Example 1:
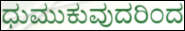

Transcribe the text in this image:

ಧುಮುಕುವುದರಿಂದ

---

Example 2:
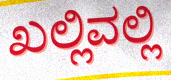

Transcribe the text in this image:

ಖಲ್ಲಿವಲ್ಲಿ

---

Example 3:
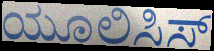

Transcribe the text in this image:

ಯೂಲಿಸಿಸ್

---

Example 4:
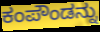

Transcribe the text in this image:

ಕಂಪೌಂಡನ್ನು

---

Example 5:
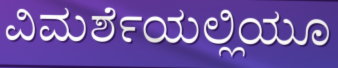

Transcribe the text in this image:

ವಿಮರ್ಶೆಯಲ್ಲಿಯೂ